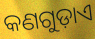
କଣଗୁଡ଼ାଏ